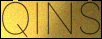
QINS